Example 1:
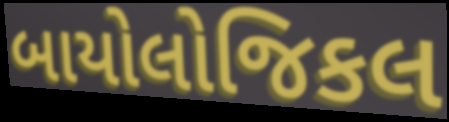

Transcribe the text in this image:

બાયોલોજિકલ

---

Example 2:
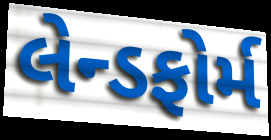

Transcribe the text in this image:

લેન્ડફોર્મ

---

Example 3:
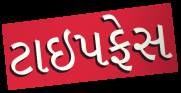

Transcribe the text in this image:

ટાઇપફેસ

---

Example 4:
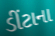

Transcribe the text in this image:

ડીંટાના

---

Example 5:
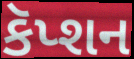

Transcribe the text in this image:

કૅપ્શન